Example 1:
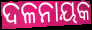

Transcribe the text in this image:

ଦଳନାୟକ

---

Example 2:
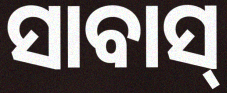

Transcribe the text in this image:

ସାବାସ୍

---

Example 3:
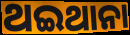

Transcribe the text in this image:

ଥଇଥାନା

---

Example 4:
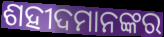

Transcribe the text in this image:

ଶହୀଦମାନଙ୍କର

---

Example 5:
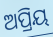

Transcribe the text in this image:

ଅପ୍ରିୟ